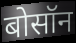
बोसॉन